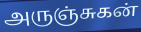
அருஞ்சுகன்